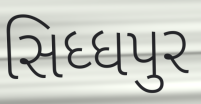
સિધ્ધપુર